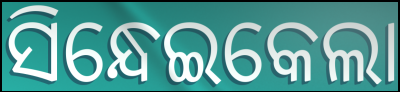
ସିନ୍ଧେଇକେଲା